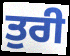
ਤੁਰੀ